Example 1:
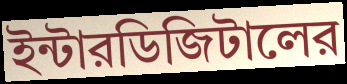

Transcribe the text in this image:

ইন্টারডিজিটালের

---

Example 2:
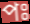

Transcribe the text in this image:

পঃ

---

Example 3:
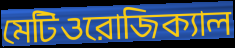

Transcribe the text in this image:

মেটিওরোজিক্যাল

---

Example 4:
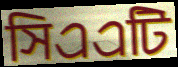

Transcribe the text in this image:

সিএএটি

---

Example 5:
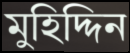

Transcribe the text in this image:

মুহিদ্দিন